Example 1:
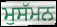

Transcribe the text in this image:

ਮੁਸੱਮਨ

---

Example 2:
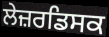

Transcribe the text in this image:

ਲੇਜ਼ਰਡਿਸਕ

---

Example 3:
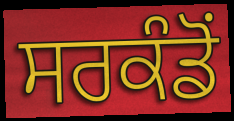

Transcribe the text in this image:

ਸਰਕੰਡੋਂ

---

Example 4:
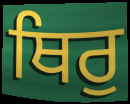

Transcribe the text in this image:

ਥਿਰੁ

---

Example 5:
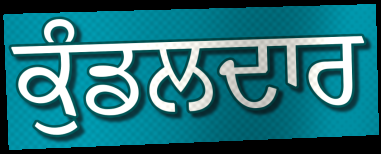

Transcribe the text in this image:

ਕੁੰਡਲਦਾਰ